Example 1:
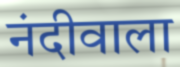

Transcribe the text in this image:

नंदीवाला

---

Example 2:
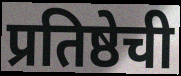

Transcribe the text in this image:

प्रतिष्ठेची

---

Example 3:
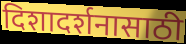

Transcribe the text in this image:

दिशादर्शनासाठी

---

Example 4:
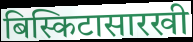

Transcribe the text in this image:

बिस्किटासारखी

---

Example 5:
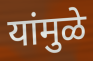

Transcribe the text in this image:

यांमुळे